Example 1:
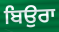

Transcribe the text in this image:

ਬਿਉਰਾ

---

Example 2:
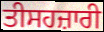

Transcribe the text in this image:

ਤੀਸਹਜ਼ਾਰੀ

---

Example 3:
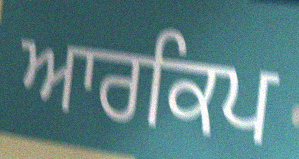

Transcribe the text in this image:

ਆਰਕਿਪ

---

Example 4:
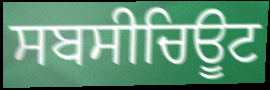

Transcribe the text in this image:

ਸਬਸੀਚਿਊਟ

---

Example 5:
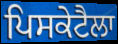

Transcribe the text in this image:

ਪਿਸਕੇਟੈਲਾ